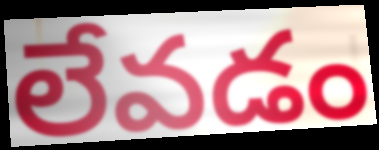
లేవడం